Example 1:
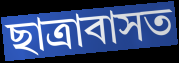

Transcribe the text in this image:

ছাত্ৰাবাসত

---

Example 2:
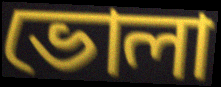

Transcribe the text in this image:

ভোলা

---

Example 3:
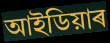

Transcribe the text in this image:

আইডিয়াৰ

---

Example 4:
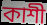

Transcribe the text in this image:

কাশী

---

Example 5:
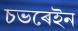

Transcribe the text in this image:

চভৰেইন